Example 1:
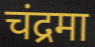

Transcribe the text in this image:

चंद्रमा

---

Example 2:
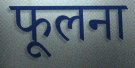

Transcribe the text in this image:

फूलना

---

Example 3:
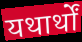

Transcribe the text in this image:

यथार्थों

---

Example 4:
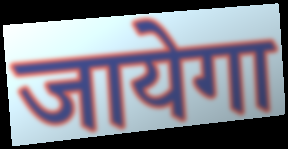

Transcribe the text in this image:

जायेगा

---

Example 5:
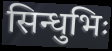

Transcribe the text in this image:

सिन्धुभिः